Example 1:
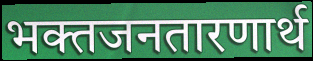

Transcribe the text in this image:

भक्तजनतारणार्थ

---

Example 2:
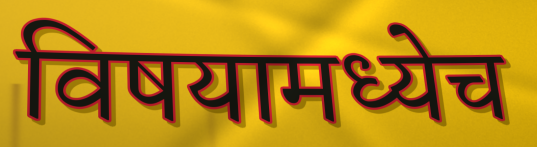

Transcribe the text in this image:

विषयामध्येच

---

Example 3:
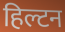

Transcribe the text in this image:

हिल्टन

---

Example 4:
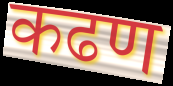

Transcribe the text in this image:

कढण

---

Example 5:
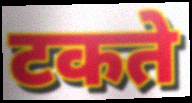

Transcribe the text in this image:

टकते